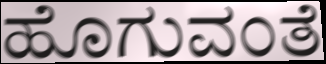
ಹೊಗುವಂತೆ